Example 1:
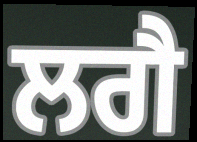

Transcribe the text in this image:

ਲਗੈ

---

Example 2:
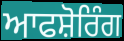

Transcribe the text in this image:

ਆਫਸ਼ੋਰਿੰਗ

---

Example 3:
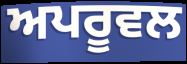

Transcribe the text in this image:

ਅਪਰੂਵਲ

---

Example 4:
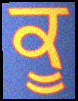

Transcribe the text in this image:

ਕੂ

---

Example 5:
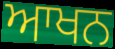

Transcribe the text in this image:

ਆਖਨ